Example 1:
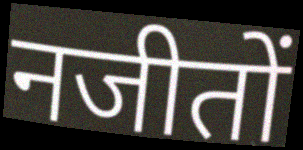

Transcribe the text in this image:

नजीतों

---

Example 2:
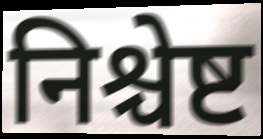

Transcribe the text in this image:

निश्चेष्ट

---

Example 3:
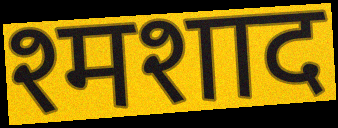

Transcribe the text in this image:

श्मशाद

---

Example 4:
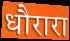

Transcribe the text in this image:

धौरारा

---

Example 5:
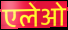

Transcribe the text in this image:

एलेओ